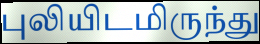
புலியிடமிருந்து